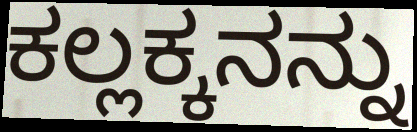
ಕಲ್ಲಕ್ಕನನ್ನು